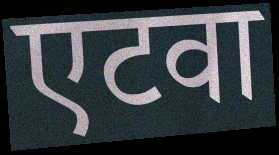
एटवा